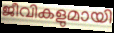
ജീവികളുമായി